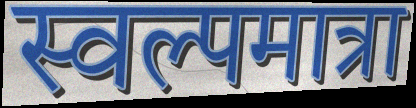
स्वल्पमात्रा